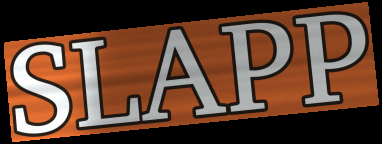
SLAPP